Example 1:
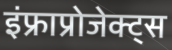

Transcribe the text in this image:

इंफ्राप्रोजेक्ट्स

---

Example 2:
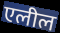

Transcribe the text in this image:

एलील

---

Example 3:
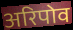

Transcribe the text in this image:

अरिपोव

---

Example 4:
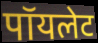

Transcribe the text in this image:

पॉयलेट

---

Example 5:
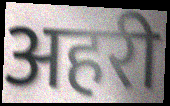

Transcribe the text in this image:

अहरी